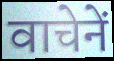
वाचेनें